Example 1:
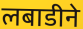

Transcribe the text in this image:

लबाडीने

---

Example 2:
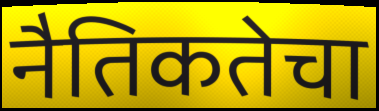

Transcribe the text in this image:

नैतिकतेचा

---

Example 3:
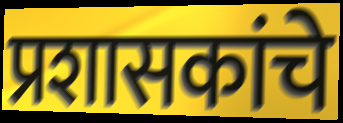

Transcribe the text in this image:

प्रशासकांचे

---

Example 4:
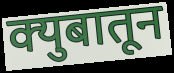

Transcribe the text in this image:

क्युबातून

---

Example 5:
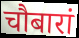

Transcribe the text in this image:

चौबारां